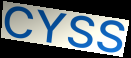
CYSS